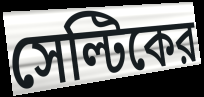
সেল্টিকের